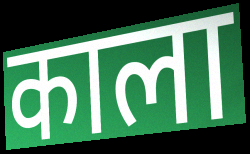
काला